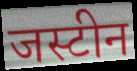
जस्टीन